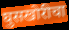
घुसखोरीचा